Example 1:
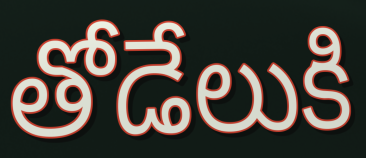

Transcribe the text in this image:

తోడేలుకి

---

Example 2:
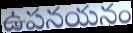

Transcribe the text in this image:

ఉపనయనం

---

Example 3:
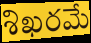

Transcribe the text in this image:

శిఖరమే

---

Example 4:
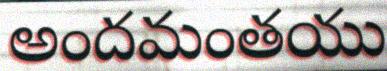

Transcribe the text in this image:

అందమంతయు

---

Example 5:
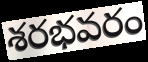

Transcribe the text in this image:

శరభవరం